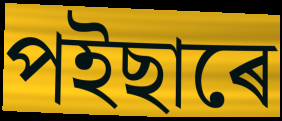
পইছাৰে